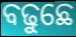
ବଢୁଛେ